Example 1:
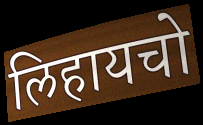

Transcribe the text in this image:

लिहायचो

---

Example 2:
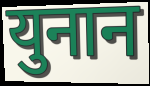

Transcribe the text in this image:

युनान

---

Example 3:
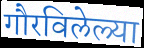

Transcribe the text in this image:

गौरविलेल्या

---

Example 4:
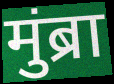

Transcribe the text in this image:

मुंब्रा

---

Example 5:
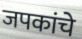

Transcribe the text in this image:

जपकांचे